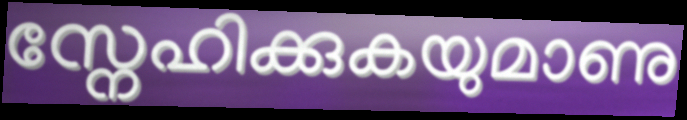
സ്നേഹിക്കുകയുമാണു